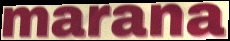
marana